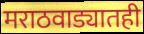
मराठवाड्यातही